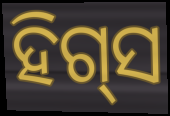
ହିଗ୍‌ସ